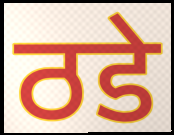
ठडे